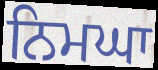
ਨਿਮਘਾ